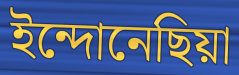
ইন্দোনেছিয়া